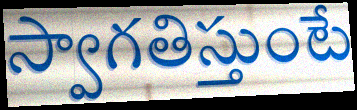
స్వాగతిస్తుంటే